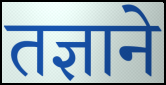
तज्ञाने